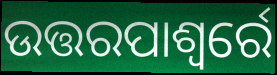
ଉତ୍ତରପାଶ୍ୱର୍ରେ